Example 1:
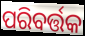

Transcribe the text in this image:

ପରିବର୍ତ୍ତକ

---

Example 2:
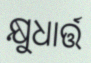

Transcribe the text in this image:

କ୍ଷୁଧାର୍ତ୍ତ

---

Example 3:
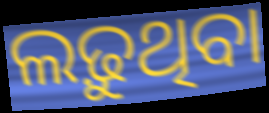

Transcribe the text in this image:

ଲଢ଼ୁଥିବା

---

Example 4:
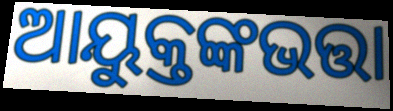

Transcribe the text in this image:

ଆୟୁକ୍ତଙ୍କଭତ୍ତା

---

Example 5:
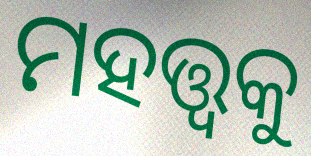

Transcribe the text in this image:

ମହତ୍ତ୍ଵକୁ